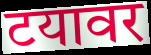
टयावर